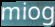
miog